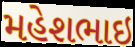
મહેશભાઇ